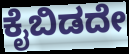
ಕೈಬಿಡದೇ